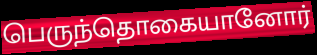
பெருந்தொகையானோர்